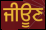
ਜੀਊਣ